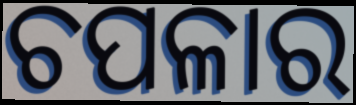
ଚପଳାର